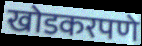
खोडकरपणे